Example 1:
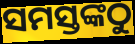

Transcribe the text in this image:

ସମସ୍ତଙ୍କଠୁ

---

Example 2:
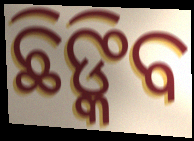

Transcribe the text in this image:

ଛିଙ୍କିବ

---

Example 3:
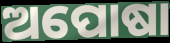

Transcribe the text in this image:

ଅପୋଷା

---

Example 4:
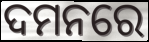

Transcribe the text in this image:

ଦମନରେ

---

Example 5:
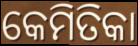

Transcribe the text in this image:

କେମିତିକା